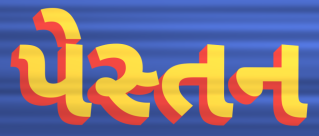
પેસ્તન